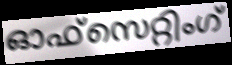
ഓഫ്സെറ്റിംഗ്